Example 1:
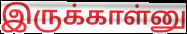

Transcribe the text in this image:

இருக்காள்னு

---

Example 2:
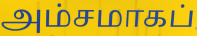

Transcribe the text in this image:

அம்சமாகப்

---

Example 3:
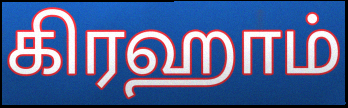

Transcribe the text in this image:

கிரஹாம்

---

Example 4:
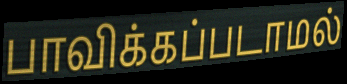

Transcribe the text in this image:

பாவிக்கப்படாமல்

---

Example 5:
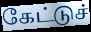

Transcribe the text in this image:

கேட்டுச்